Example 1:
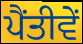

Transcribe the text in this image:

ਪੈਂਤੀਵੇਂ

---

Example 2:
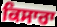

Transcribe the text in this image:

ਕਿਸਾਰਾ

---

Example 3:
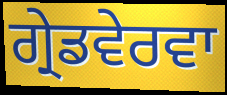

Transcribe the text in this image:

ਗ੍ਰੇਡਵੇਰਵਾ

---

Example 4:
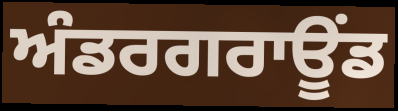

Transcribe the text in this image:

ਅੰਡਰਗਰਾਊੰਡ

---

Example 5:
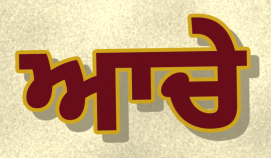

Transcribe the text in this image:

ਆਚੇ